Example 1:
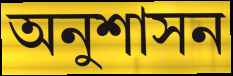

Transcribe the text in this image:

অনুশাসন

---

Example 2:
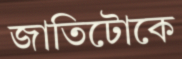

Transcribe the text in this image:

জাতিটোকে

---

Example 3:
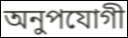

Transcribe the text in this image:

অনুপযোগী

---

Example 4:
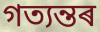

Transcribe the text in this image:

গত্যন্তৰ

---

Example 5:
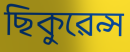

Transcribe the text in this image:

ছিকুৱেন্স